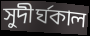
সুদীর্ঘকাল